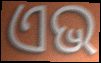
ଏଭ